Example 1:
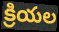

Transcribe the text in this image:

క్రియల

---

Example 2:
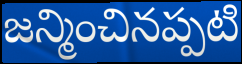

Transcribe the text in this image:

జన్మించినప్పటి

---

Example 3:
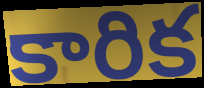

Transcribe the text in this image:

కారిక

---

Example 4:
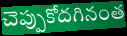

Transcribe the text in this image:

చెప్పుకోదగినంత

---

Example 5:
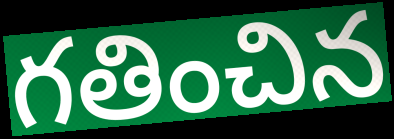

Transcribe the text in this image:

గతించిన